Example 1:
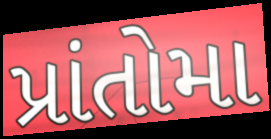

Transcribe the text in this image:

પ્રાંતોમા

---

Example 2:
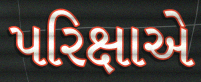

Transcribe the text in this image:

પરિક્ષાએ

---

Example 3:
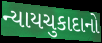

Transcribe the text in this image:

ન્યાયચુકાદાનો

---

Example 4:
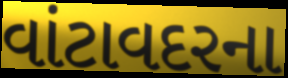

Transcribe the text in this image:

વાંટાવદરના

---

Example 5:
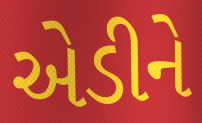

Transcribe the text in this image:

એડીને